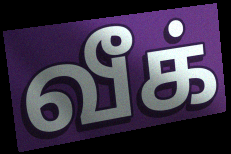
வீக்